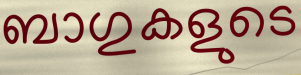
ബാഗുകളുടെ